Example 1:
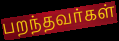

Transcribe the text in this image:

பறந்தவர்கள்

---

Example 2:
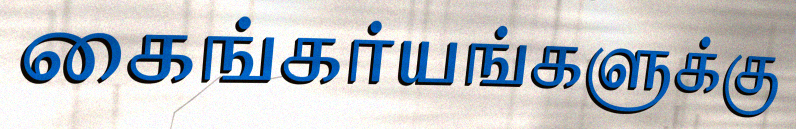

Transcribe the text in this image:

கைங்கர்யங்களுக்கு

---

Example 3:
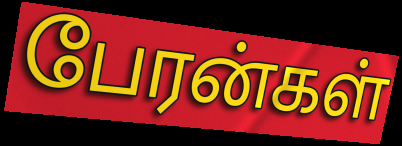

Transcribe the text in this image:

பேரன்கள்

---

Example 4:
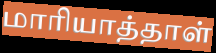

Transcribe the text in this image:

மாரியாத்தாள்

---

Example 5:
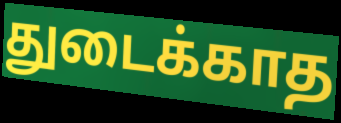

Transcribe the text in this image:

துடைக்காத